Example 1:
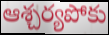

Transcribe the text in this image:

ఆశ్చర్యపోకు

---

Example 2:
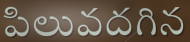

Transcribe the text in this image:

పిలువదగిన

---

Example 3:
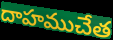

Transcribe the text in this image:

దాహముచేత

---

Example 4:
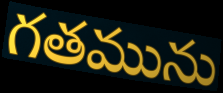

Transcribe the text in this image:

గతమును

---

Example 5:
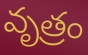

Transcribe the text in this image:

వృత్రం